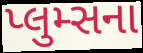
પ્લુમ્સના